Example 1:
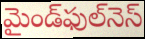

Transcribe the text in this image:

మైండ్‌ఫుల్‌నెస్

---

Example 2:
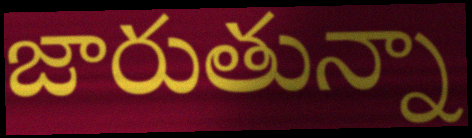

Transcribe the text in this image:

జారుతున్నా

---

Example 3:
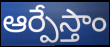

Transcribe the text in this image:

ఆర్పేస్తాం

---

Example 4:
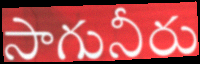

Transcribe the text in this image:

సాగునీరు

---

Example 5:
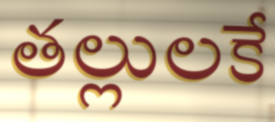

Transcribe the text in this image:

తల్లులకే